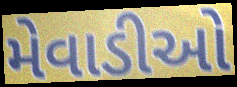
મેવાડીઓ